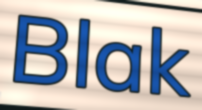
Blak